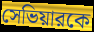
সেভিয়ারকে